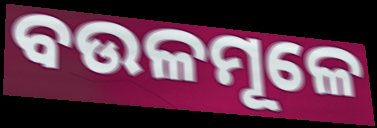
ବଉଳମୂଳେ